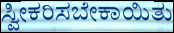
ಸ್ವೀಕರಿಸಬೇಕಾಯಿತು